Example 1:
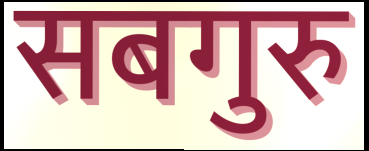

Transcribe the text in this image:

सबगुरु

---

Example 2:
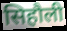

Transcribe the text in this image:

सिहौली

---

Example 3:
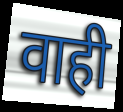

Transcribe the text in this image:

वाही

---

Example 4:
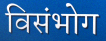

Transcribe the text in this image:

विसंभोग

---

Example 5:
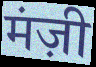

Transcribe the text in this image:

मंज़ी